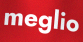
meglio